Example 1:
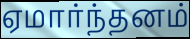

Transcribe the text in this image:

ஏமார்ந்தனம்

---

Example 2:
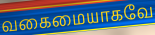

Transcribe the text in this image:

வகைமையாகவே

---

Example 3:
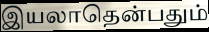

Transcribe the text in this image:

இயலாதென்பதும்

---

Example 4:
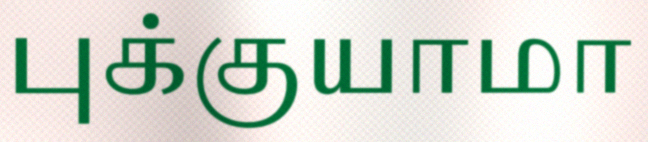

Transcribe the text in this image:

புக்குயாமா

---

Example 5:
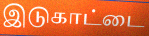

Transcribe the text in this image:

இடுகாட்டை